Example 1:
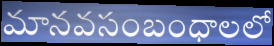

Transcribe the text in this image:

మానవసంబంధాలలో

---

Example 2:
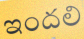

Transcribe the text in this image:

ఇందలి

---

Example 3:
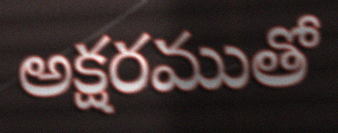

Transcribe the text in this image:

అక్షరముతో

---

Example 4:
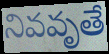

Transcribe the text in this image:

నివవృతే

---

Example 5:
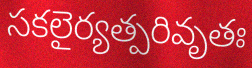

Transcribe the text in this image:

సకలైర్యత్పరివృతః